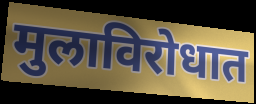
मुलाविरोधात